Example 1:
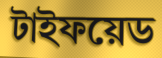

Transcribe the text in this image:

টাইফয়েড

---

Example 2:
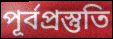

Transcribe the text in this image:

পূর্বপ্রস্তুতি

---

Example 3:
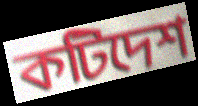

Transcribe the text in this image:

কটিদেশ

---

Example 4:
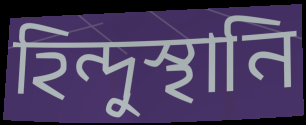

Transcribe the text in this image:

হিন্দুস্থানি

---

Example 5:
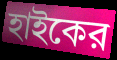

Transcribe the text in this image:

হাইকের